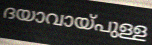
ദയാവായ്പുള്ള